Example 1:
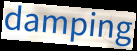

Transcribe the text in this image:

damping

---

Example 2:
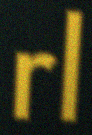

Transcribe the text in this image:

rl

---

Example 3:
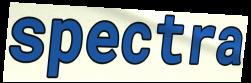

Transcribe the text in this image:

spectra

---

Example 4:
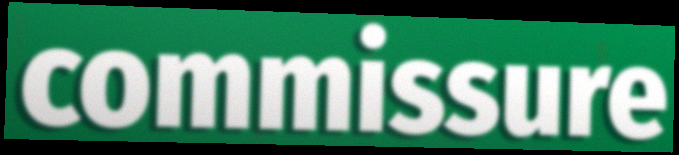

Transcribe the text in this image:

commissure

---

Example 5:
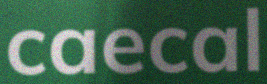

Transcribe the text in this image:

caecal